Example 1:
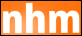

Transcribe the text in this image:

nhm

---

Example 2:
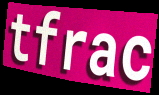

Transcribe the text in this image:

tfrac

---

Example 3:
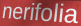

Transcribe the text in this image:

nerifolia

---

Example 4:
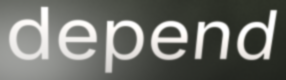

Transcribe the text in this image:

depend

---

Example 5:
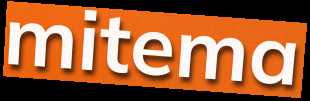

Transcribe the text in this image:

mitema